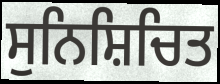
ਸੁਨਿਸ਼ਿਚਿਤ